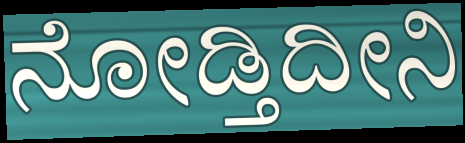
ನೋಡ್ತಿದೀನಿ